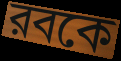
রবকে